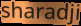
sharadji